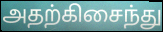
அதற்கிசைந்து